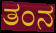
ತಂನ